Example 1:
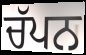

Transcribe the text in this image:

ਚੱਪਨ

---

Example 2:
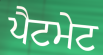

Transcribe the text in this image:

ਪੈਟਮੇਟ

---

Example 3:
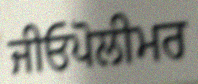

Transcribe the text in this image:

ਜੀਓਪੋਲੀਮਰ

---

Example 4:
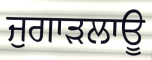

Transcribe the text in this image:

ਜੁਗਾੜਲਾਊ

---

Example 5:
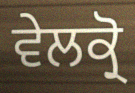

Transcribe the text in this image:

ਵੇਲਕ੍ਰੋ